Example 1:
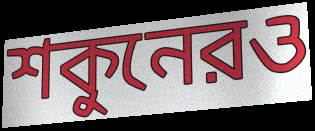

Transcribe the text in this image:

শকুনেরও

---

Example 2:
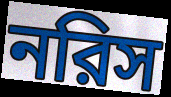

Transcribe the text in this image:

নরিস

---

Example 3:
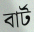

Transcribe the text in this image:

বার্ট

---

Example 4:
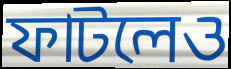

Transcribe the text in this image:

ফাটলেও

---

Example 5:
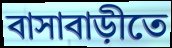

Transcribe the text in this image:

বাসাবাড়ীতে